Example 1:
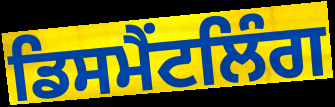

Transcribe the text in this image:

ਡਿਸਮੈਂਟਲਿੰਗ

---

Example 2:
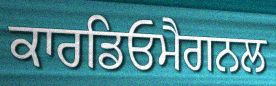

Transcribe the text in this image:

ਕਾਰਡਿਓਮੈਗਨਲ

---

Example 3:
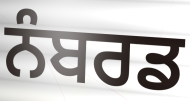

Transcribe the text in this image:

ਨੰਬਰਡ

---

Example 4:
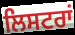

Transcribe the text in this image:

ਲਿਸਟਰਾਂ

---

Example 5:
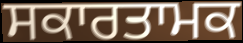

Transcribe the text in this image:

ਸਕਾਰਤਾਮਕ